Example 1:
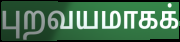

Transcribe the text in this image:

புறவயமாகக்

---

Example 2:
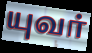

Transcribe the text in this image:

யுவர்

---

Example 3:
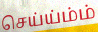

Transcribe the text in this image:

செய்ய்ம்ம்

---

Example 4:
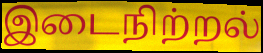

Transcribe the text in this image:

இடைநிற்றல்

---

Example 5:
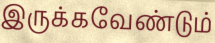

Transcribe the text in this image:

இருக்கவேண்டும்